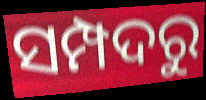
ସମ୍ପଦରୁ